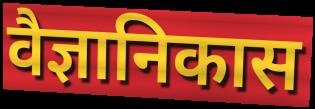
वैज्ञानिकास